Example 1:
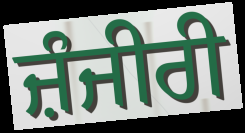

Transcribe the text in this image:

ਜ਼ੰਜੀਰੀ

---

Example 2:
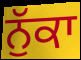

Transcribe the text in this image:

ਨੁੱਕਾ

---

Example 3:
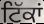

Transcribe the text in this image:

ਟਿੱਕਾਂ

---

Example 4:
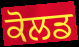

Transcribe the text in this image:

ਕੋਲਡ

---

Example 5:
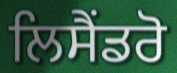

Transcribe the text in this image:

ਲਿਸੈਂਡਰੋ